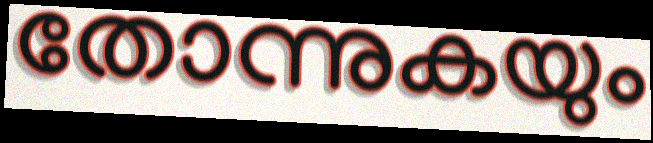
തോന്നുകയും